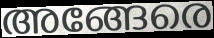
അങ്ങേരെ